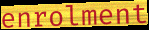
enrolment